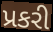
પ્રકરી